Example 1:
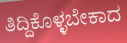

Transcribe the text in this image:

ತಿದ್ದಿಕೊಳ್ಳಬೇಕಾದ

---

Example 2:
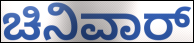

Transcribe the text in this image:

ಚಿನಿವಾರ್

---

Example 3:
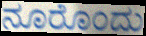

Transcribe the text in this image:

ನೂರೊಂದು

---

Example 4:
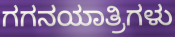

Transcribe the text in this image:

ಗಗನಯಾತ್ರಿಗಳು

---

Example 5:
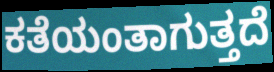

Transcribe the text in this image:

ಕತೆಯಂತಾಗುತ್ತದೆ